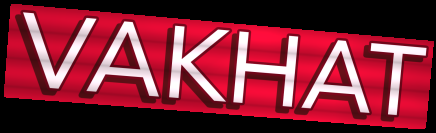
VAKHAT